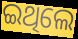
ଇଥିଲେ